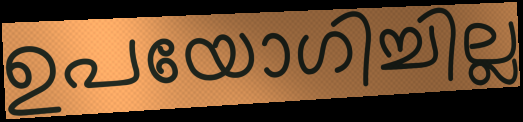
ഉപയോഗിച്ചില്ല